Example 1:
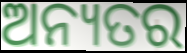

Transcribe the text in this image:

ଅନ୍ୟତର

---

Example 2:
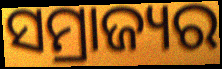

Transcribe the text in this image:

ସମ୍ରାଜ୍ୟର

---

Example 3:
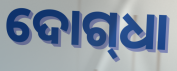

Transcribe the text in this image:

ଦୋଗ୍‌ଧା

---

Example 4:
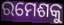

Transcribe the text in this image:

ରମେଶକୁ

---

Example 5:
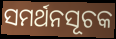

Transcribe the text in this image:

ସମର୍ଥନସୂଚକ